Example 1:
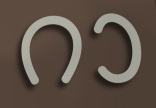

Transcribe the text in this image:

റാ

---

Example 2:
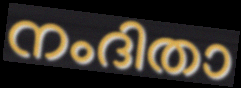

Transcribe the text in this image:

നംദിതാ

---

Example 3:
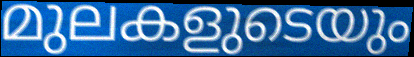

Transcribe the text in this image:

മുലകളുടെയും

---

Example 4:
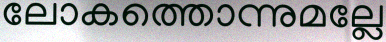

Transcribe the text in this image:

ലോകത്തൊന്നുമല്ലേ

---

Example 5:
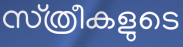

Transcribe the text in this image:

സ്‌ത്രീകളുടെ